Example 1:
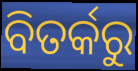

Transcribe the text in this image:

ବିତର୍କରୁ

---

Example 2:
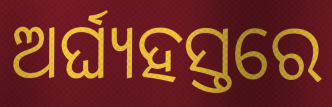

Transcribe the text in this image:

ଅର୍ଘ୍ୟହସ୍ତରେ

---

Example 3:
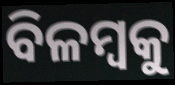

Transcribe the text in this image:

ବିଳମ୍ୱକୁ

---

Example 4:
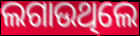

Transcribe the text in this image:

ଲଗାଉଥିଲେ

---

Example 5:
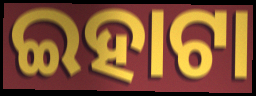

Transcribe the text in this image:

ଇହାଟା